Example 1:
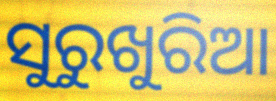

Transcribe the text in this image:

ସୁରୁଖୁରିଆ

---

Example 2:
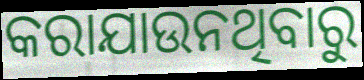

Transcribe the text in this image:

କରାଯାଉନଥିବାରୁ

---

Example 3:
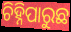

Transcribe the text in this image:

ଚିହ୍ନିପାରୁଛ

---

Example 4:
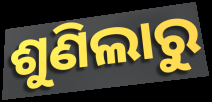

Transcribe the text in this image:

ଶୁଣିଲାରୁ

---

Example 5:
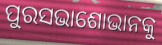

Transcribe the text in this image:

ପୁରସଭାଶୋଭାନକୁ